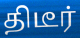
திடீர்